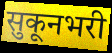
सुकूनभरी